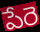
పేరె